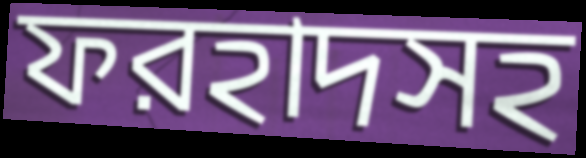
ফরহাদসহ